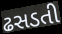
ઢસડતી